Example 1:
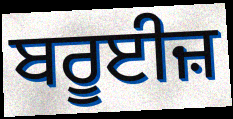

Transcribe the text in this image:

ਬਰੂਈਜ਼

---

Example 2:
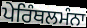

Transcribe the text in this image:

ਪੇਰਿੰਥਲਮੰਨਾ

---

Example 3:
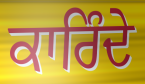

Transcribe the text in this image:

ਕਾਰਿੰਦੇ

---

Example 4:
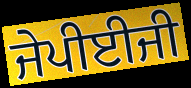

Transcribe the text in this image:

ਜੇਪੀਈਜੀ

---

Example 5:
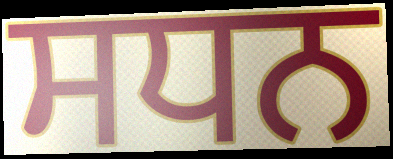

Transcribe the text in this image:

ਸਧਨ